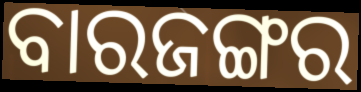
ବାରଜଙ୍ଗର